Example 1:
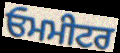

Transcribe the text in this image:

ਓਮਮੀਟਰ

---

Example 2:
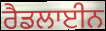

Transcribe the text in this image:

ਰੈਡਲਾਈਨ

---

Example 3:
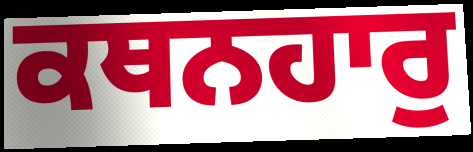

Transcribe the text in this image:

ਕਥਨਹਾਰੁ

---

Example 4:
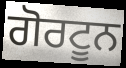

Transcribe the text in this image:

ਗੋਰਟੂਨ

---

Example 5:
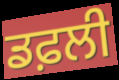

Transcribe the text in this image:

ਡਫ਼ਲੀ